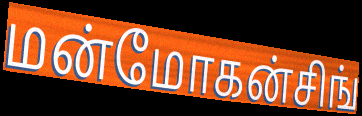
மன்மோகன்சிங்